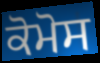
ਕੋਮੋਸ